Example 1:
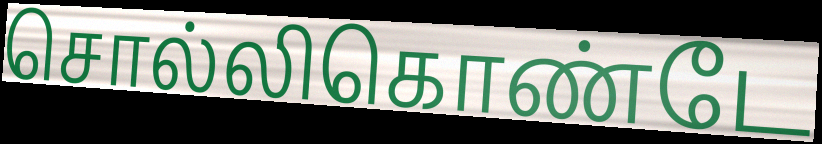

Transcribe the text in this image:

சொல்லிகொண்டே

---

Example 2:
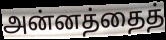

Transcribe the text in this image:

அன்னத்தைத்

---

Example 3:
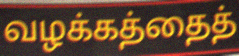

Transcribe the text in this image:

வழக்கத்தைத்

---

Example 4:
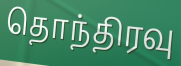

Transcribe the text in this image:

தொந்திரவு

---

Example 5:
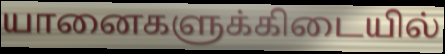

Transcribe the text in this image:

யானைகளுக்கிடையில்